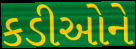
કડીઓને